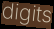
digits